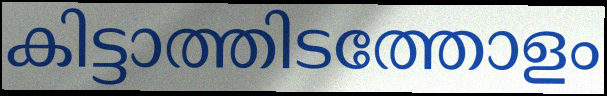
കിട്ടാത്തിടത്തോളം